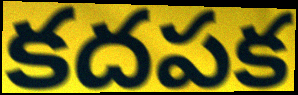
కదపక